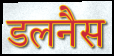
डलनैस